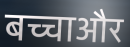
बच्चाऔर